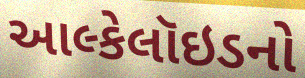
આલ્કેલૉઇડનો